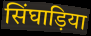
सिंघाड़िया